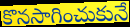
కొనసాగించుకునే